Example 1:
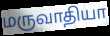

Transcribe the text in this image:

மருவாதியா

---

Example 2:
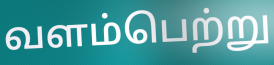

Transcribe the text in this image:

வளம்பெற்று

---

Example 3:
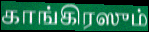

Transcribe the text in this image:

காங்கிரஸும்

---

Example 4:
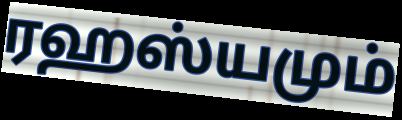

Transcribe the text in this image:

ரஹஸ்யமும்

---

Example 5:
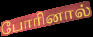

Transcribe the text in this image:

போரினால்